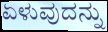
ಏಳುವುದನ್ನು